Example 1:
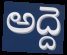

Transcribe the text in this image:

అద్దె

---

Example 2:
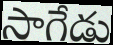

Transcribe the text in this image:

సాగేడు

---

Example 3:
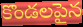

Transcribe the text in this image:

కొండలపైన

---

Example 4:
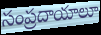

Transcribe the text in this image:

సంప్రదాయాలూ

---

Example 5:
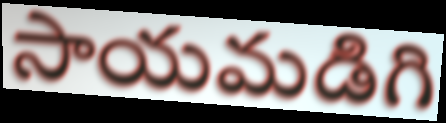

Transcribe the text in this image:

సాయమడిగి